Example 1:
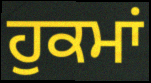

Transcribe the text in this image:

ਹੁਕਮਾਂ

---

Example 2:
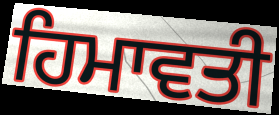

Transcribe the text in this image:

ਹਿਮਾਵਤੀ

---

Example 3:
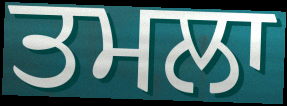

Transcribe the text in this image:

ਤਮਲਾ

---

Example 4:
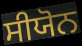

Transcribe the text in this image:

ਸੀਯੋਨ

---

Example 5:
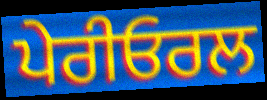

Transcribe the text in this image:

ਪੇਰੀਓਰਲ